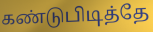
கண்டுபிடித்தே